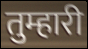
तुम्हारी